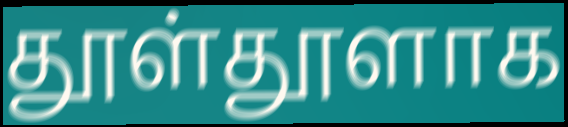
தூள்தூளாக